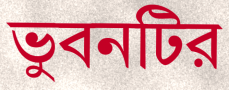
ভুবনটির